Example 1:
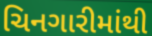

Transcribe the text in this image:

ચિનગારીમાંથી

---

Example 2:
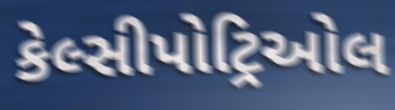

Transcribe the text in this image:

કેલ્સીપોટ્રિઓલ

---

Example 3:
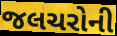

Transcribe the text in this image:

જલચરોની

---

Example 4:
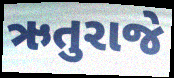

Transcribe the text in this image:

ઋતુરાજે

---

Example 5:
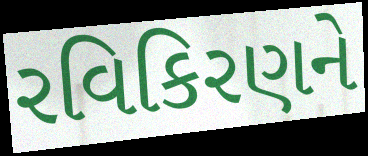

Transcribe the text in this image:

રવિકિરણને